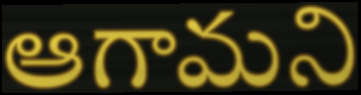
ఆగామని